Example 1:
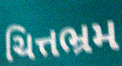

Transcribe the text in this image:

ચિત્તભ્રમ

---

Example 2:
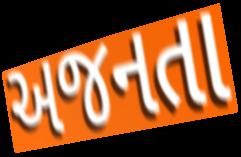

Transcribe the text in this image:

અજનતા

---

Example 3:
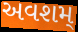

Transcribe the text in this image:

અવશમ્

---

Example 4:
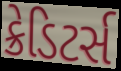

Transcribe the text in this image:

ક્રેડિટર્સ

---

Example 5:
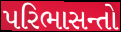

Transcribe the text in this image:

પરિભાસન્તો